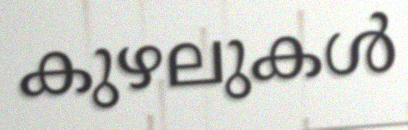
കുഴലുകൾ